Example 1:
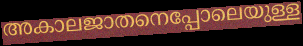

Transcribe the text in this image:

അകാലജാതനെപ്പോലെയുള്ള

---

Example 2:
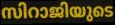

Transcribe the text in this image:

സിറാജിയുടെ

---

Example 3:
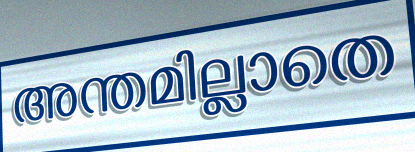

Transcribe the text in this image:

അന്തമില്ലാതെ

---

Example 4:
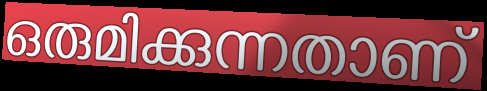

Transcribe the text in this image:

ഒരുമിക്കുന്നതാണ്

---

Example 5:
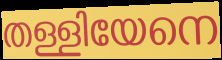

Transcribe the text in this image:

തള്ളിയേനെ